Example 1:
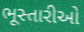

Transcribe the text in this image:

ભૂસ્તારીઓ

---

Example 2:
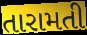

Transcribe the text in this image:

તારામતી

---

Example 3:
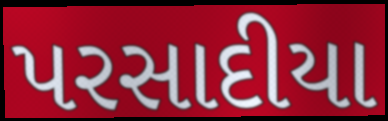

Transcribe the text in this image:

પરસાદીયા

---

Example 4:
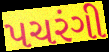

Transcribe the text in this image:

પચરંગી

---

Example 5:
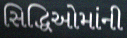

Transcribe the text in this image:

સિદ્ધિઓમાંની